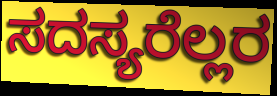
ಸದಸ್ಯರೆಲ್ಲರ